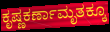
ಕೃಷ್ಣಕರ್ಣಾಮೃತಕ್ಕೂ